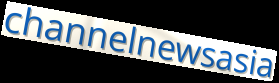
channelnewsasia